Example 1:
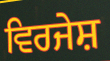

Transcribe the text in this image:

ਵਿਰਜੇਸ਼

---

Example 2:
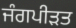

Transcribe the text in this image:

ਜੰਗਪੀੜਤ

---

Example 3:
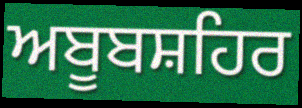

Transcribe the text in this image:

ਅਬੂਬਸ਼ਹਿਰ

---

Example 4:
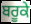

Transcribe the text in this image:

ਬਰੂਕੇ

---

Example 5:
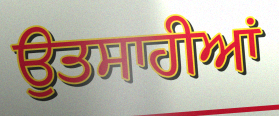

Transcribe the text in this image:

ਉਤਸਾਹੀਆਂ